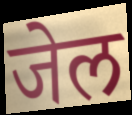
जेल